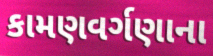
કામણવર્ગણાના